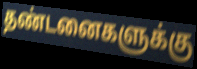
தண்டனைகளுக்கு